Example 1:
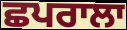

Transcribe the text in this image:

ਛਪਰਾਲਾ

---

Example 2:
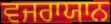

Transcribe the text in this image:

ਵਜਰਾਯਾਨ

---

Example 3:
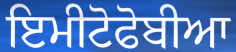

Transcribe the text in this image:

ਇਮੀਟੋਫੋਬੀਆ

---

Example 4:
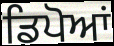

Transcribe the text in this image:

ਡਿਪੋਆਂ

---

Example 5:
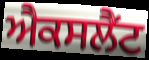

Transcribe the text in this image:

ਐਕਸਲੈਂਟ